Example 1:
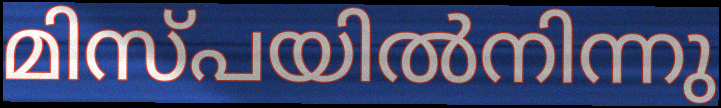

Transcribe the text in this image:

മിസ്പയിൽനിന്നു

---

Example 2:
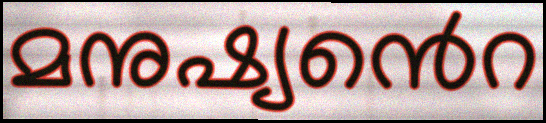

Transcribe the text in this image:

മനുഷ്യൻെറ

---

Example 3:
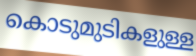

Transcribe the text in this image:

കൊടുമുടികളുള്ള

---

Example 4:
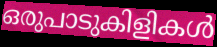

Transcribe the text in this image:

ഒരുപാടുകിളികൾ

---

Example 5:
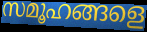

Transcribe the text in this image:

സമൂഹങ്ങളെ